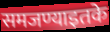
समजण्याइतके